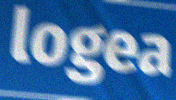
logea